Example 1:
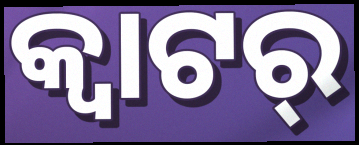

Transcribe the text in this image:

କ୍ୱାଟର୍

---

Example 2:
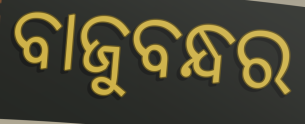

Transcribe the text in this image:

ବାଜୁବନ୍ଧର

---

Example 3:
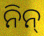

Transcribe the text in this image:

ନିନ୍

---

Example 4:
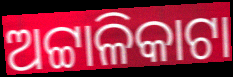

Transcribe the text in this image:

ଅଟ୍ଟାଳିକାଟା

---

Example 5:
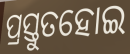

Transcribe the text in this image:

ପ୍ରସ୍ତୁତହୋଇ